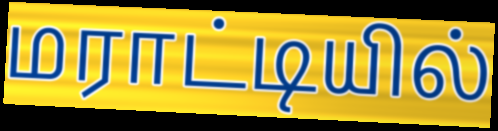
மராட்டியில்